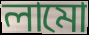
লামো